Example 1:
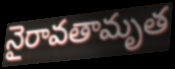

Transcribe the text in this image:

నైరావతామృత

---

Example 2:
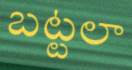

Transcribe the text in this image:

బట్టలా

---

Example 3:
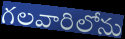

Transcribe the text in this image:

గలవారిలోను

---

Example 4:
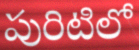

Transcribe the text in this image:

పురిటిలో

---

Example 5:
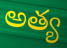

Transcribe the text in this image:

అత్య